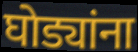
घोड्यांना